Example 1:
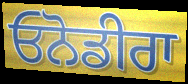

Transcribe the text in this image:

ਓਨੋਡੀਰਾ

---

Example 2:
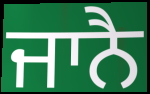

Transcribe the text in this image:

ਜਾਨੈ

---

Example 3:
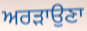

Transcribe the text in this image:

ਅਰੜਾਉਣਾ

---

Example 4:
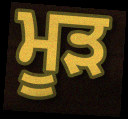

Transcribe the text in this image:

ਮੂੜ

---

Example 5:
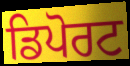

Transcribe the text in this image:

ਡਿਪੋਰਟ